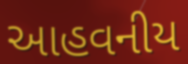
આહવનીય